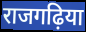
राजगढ़िया